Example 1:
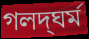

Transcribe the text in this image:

গলদ্‌ঘর্ম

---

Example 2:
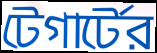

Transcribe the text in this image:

টেগার্টের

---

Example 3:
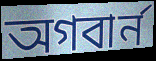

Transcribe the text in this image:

অগবার্ন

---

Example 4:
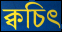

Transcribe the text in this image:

ক্বচিৎ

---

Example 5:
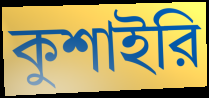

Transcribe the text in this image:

কুশাইরি